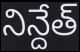
నిన్దేత్